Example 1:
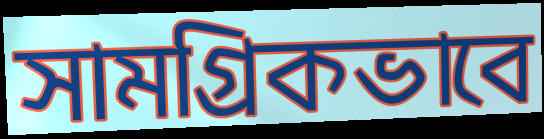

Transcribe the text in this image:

সামগ্ৰিকভাবে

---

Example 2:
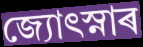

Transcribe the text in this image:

জ্যোৎস্নাৰ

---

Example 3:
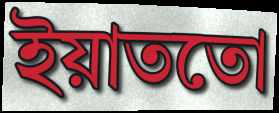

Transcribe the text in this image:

ইয়াততো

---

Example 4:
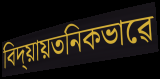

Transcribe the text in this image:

বিদ্য়ায়তনিকভাৱে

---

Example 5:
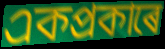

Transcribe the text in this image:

একপ্ৰকাৰে